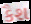
કૈશ